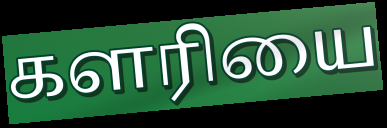
களரியை